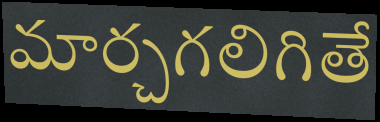
మార్చగలిగితే